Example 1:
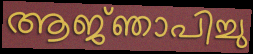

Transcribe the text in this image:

ആജ്‌ഞാപിച്ചു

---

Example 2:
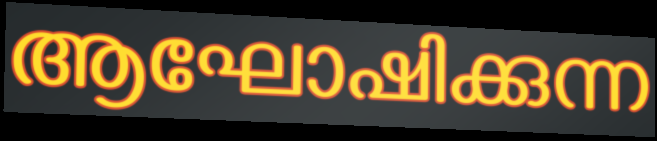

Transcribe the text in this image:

ആഘോഷിക്കുന്ന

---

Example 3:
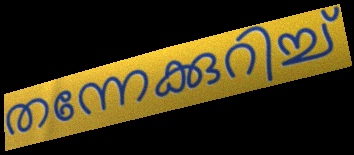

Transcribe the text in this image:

തന്നേക്കുറിച്ച്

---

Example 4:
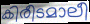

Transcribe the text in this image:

കിരീടമാലീ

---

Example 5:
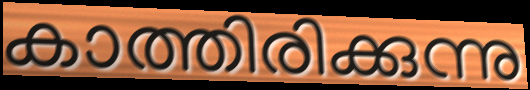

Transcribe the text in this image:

കാത്തിരിക്കുന്നു